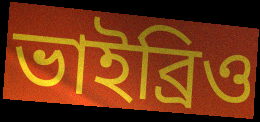
ভাইব্রিও